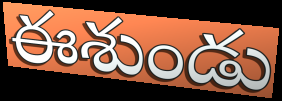
ఈశుండు